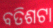
ବତିଶଟା